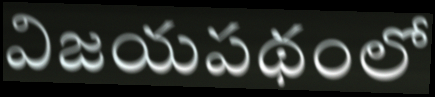
విజయపథంలో